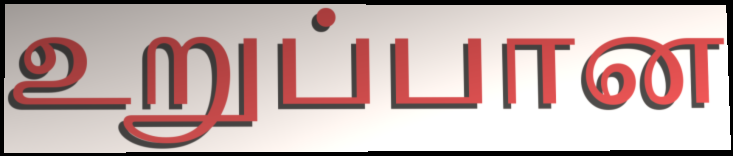
உறுப்பான